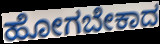
ಹೋಗಬೇಕಾದ